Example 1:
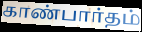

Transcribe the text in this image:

காண்பார்தம்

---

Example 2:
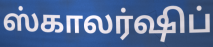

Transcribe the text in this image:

ஸ்காலர்ஷிப்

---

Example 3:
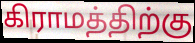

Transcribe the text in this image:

கிராமத்திற்கு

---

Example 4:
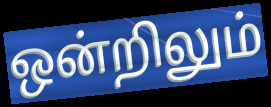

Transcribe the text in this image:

ஒன்றிலும்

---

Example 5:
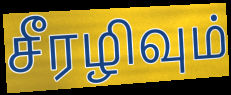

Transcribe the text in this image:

சீரழிவும்